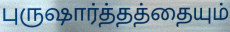
புருஷார்த்தத்தையும்